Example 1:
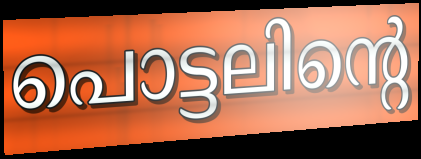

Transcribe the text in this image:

പൊട്ടലിന്റെ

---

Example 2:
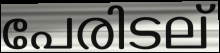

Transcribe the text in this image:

പേരിടല്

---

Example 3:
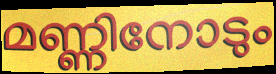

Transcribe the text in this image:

മണ്ണിനോടും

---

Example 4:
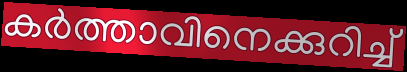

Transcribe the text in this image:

കർത്താവിനെക്കുറിച്ച്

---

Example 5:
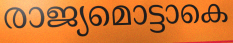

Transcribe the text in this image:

രാജ്യമൊട്ടാകെ